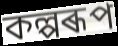
কল্পৰূপ